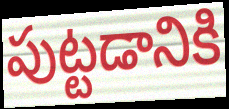
పుట్టడానికి